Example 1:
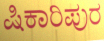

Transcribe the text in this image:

ಷಿಕಾರಿಪುರ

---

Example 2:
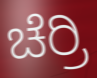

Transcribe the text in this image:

ಚೆರ್ರಿ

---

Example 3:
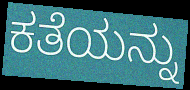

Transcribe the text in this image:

ಕತೆಯನ್ನು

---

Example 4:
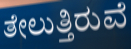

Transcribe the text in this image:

ತೇಲುತ್ತಿರುವೆ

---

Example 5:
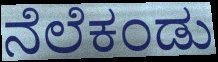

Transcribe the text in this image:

ನೆಲೆಕಂಡು